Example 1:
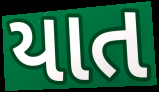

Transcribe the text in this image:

યાત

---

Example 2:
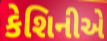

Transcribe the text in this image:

કેશિનીએ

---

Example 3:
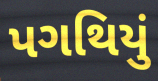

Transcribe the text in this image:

પગથિયું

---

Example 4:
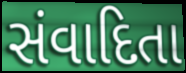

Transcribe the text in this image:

સંવાદિતા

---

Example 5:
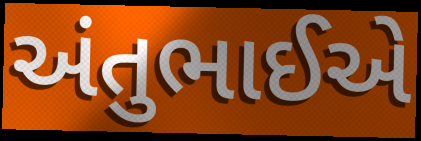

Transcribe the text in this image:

અંતુભાઈએ